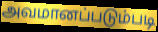
அவமானப்படும்படி